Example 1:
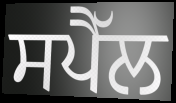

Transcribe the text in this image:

ਸਪੈੱਲ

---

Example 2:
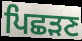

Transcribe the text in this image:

ਪਿਛੜਣ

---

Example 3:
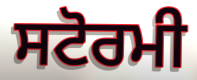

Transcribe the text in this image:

ਸਟੋਰਮੀ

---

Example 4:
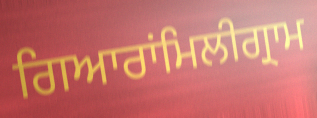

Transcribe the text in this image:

ਗਿਆਰਾਂਮਿਲੀਗ੍ਰਾਮ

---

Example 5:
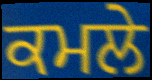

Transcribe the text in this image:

ਕਮਲੇ